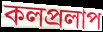
কলপ্রলাপ